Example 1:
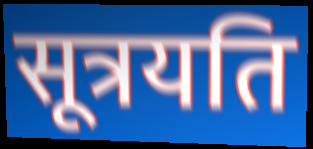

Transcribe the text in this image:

सूत्रयति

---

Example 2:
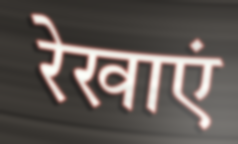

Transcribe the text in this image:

रेखाएं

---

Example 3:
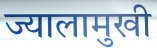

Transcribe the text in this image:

ज्यालामुखी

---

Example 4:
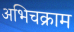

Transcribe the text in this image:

अभिचक्राम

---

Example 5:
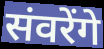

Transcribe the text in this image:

संवरेंगे